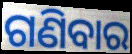
ଗଣିବାର